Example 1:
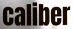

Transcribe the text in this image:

caliber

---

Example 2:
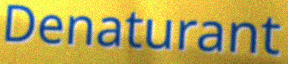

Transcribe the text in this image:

Denaturant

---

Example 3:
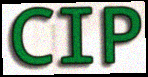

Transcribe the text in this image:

CIP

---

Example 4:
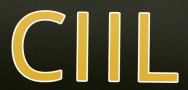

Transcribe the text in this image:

CIIL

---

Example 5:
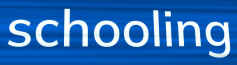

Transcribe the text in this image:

schooling